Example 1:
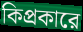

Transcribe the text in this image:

কিপ্রকারে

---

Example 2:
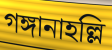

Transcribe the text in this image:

গঙ্গানাহল্লি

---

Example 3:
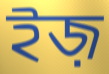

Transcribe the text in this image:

ইজ়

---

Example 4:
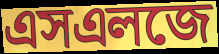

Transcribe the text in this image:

এসএলজে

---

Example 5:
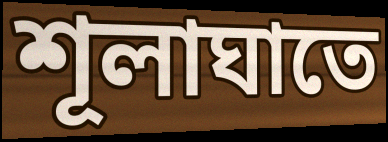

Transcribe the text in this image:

শূলাঘাতে